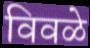
विवळे